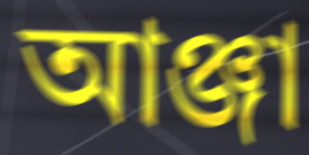
আঞ্জা